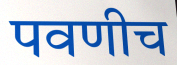
पवणीच